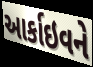
આર્કાઇવને